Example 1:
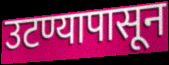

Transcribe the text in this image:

उटण्यापासून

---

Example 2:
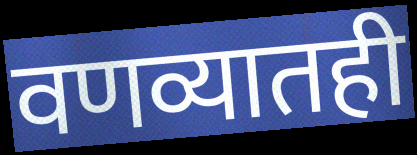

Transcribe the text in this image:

वणव्यातही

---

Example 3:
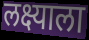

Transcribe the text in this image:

लक्ष्याला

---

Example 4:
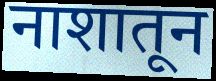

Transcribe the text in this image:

नाशातून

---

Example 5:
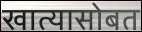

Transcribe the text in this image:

खात्यासोबत